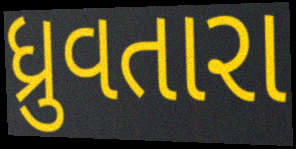
ધ્રુવતારા